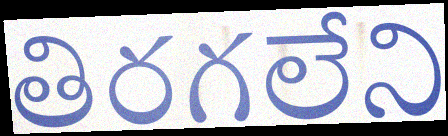
తిరగలేని